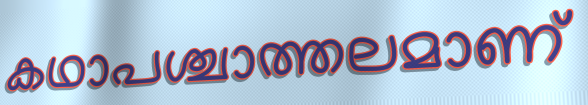
കഥാപശ്ചാത്തലമാണ്